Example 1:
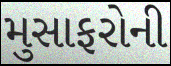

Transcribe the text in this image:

મુસાફરોની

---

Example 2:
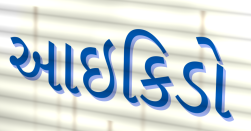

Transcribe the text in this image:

આઇકિડો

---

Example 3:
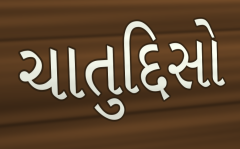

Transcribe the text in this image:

ચાતુદ્દિસો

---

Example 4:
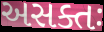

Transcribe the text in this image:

અસક્તઃ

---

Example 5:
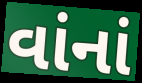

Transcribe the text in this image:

વાંનાં